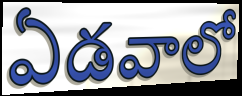
ఏడవాలో